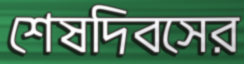
শেষদিবসের